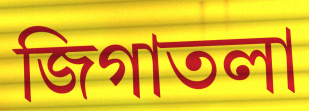
জিগাতলা